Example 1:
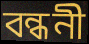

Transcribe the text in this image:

বন্ধনী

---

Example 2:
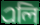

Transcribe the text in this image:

এলি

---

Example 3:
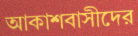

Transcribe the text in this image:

আকাশবাসীদের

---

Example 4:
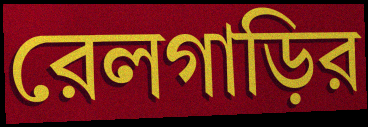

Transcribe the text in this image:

রেলগাড়ির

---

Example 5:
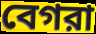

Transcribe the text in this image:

বেগরা